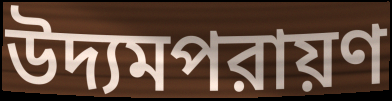
উদ্যমপরায়ণ